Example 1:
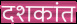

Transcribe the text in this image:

दशकांत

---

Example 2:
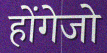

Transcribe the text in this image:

होंगेजो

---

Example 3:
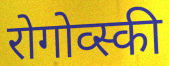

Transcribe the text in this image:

रोगोव्स्की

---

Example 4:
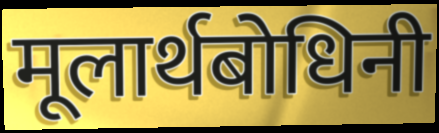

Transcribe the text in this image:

मूलार्थबोधिनी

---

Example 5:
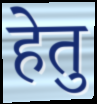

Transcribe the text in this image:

हेतु